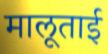
मालूताई